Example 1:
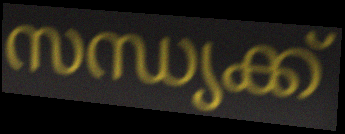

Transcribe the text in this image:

സന്ധ്യക്ക്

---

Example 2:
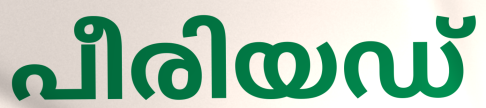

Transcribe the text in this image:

പീരിയഡ്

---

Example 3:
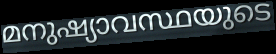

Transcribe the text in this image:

മനുഷ്യാവസ്ഥയുടെ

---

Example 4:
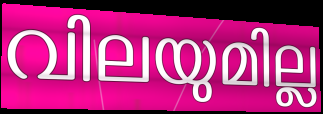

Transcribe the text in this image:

വിലയുമില്ല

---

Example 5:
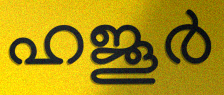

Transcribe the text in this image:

ഹജൂർ